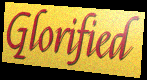
Glorified